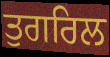
ਤੁਗਰਿਲ